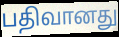
பதிவானது